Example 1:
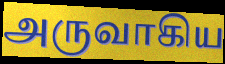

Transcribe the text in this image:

அருவாகிய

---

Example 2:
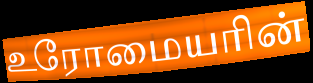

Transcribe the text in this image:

உரோமையரின்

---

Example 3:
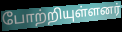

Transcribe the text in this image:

போற்றியுள்ளனர்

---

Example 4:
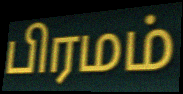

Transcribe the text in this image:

பிரமம்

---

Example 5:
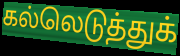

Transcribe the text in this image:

கல்லெடுத்துக்